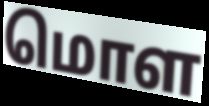
மொள